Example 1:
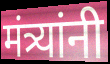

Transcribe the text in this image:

मंत्र्यांनी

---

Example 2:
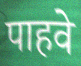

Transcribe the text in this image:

पाहवे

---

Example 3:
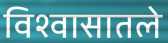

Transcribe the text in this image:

विश्वासातले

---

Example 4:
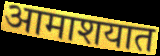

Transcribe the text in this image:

आमाशयात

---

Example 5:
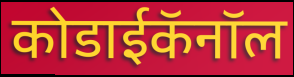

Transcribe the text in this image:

कोडाईकॅनॉल